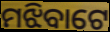
ମଝିବାଟେ